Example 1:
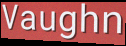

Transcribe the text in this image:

Vaughn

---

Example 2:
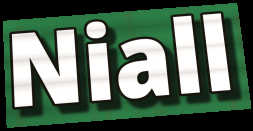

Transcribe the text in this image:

Niall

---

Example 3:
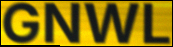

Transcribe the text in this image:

GNWL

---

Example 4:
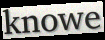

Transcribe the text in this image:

knowe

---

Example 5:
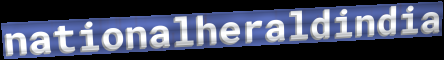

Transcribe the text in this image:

nationalheraldindia